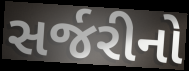
સર્જરીનો